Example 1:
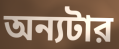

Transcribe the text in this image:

অন্যটার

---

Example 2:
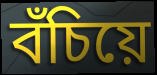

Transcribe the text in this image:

বঁচিয়ে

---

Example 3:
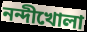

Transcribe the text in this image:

নন্দীখোলা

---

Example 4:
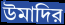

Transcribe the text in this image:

উমাদির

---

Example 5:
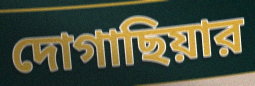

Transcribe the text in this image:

দোগাছিয়ার